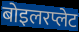
बोइलरप्लेट